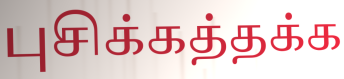
புசிக்கத்தக்க